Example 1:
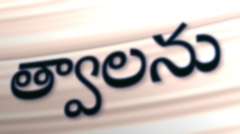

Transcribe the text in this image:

త్వాలను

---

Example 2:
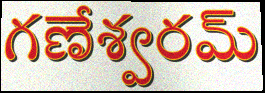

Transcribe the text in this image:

గణేశ్వరమ్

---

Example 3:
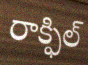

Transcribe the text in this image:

రాక్ఫిల్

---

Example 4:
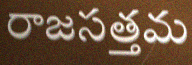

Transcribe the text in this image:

రాజసత్తమ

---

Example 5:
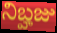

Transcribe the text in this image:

నిబ్హజు